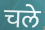
चले